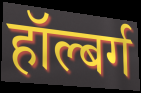
हॉल्बर्ग